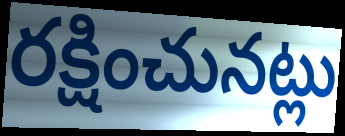
రక్షించునట్లు